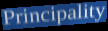
Principality